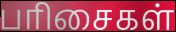
பரிசைகள்